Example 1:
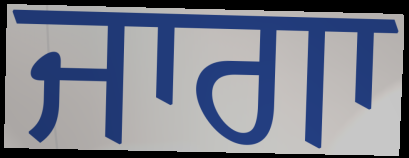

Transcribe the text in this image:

ਜਾਗਾ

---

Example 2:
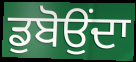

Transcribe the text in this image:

ਡੁਬੋਉਂਦਾ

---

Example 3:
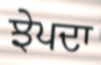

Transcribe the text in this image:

ਝੇਪਦਾ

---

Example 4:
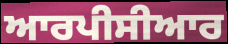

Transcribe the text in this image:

ਆਰਪੀਸੀਆਰ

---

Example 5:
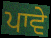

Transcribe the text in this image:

ਪਾਵੇ